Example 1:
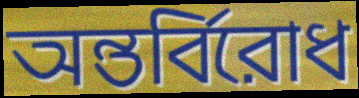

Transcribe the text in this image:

অন্তর্বিরোধ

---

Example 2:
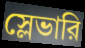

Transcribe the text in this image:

স্লেভারি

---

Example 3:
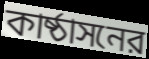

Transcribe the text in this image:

কাষ্ঠাসনের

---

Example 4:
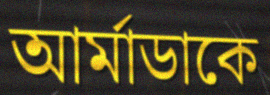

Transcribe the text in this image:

আর্মাডাকে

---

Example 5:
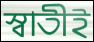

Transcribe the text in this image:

স্বাতীই